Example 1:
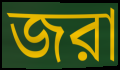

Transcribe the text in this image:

জরা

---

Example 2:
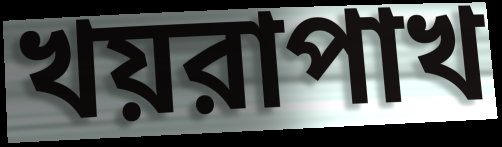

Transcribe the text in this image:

খয়রাপাখ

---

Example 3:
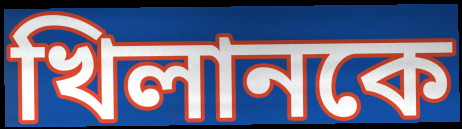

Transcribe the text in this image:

খিলানকে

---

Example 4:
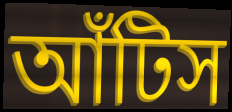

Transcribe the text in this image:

আঁটিস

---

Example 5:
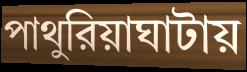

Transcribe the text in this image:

পাথুরিয়াঘাটায়